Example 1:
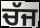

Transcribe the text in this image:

ਚੱਜ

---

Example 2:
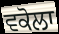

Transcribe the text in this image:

ਵਕੋਲਾ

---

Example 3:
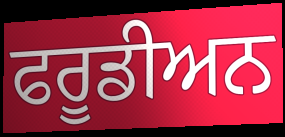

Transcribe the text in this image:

ਫਰੂਡੀਅਨ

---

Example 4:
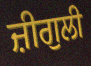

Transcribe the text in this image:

ਜ਼ੀਗੁਲੀ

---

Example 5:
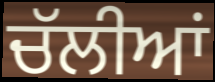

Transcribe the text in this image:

ਚੱਲੀਆਂ